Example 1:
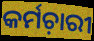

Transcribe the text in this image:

କର୍ମଚ଼ାରୀ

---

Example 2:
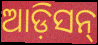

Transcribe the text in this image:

ଆଡ଼ିସନ୍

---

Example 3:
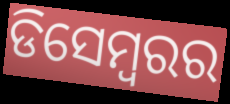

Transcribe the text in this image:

ଡିସେମ୍ୱରର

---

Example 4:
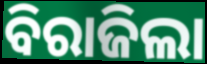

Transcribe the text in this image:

ବିରାଜିଲା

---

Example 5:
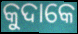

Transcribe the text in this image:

କୁଦାକେ